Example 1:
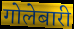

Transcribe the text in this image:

गोलेबारी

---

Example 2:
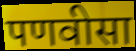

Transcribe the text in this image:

पणवीसा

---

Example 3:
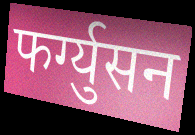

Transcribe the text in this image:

फर्ग्युसन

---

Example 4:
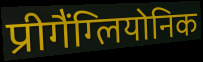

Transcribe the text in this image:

प्रीगैंग्लियोनिक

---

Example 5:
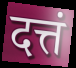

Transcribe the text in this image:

दत्तं